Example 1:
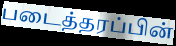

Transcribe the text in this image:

படைத்தரப்பின்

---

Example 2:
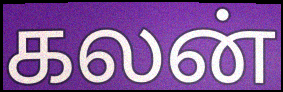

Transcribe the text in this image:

கலன்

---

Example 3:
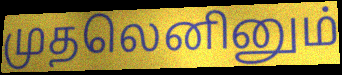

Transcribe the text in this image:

முதலெனினும்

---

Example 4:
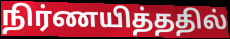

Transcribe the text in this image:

நிர்ணயித்ததில்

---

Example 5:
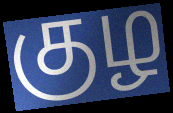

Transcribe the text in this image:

குழ